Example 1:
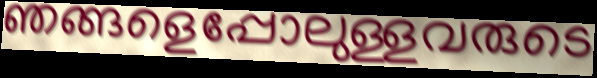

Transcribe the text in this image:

ഞങ്ങളെപ്പോലുള്ളവരുടെ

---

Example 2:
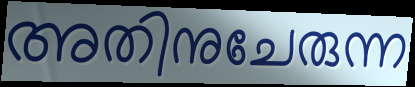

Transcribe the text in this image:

അതിനുചേരുന്ന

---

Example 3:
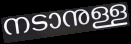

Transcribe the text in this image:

നടാനുള്ള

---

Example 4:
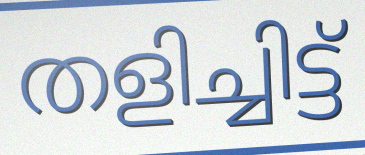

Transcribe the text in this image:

തളിച്ചിട്ട്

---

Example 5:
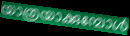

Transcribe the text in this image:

യാത്രയാക്കുമ്പോൾ